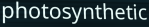
photosynthetic